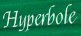
Hyperbole